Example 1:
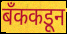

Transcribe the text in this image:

बँककडून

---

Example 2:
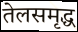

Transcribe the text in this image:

तेलसमृद्ध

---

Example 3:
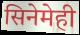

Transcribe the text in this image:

सिनेमेही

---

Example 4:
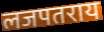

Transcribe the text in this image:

लजपतराय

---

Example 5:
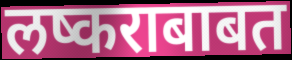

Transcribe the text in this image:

लष्कराबाबत